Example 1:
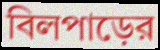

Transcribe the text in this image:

বিলপাড়ের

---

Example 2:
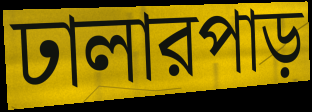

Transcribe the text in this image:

ঢালারপাড়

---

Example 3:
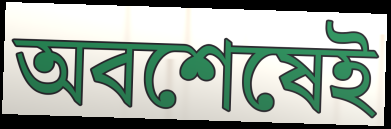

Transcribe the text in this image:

অবশেষেই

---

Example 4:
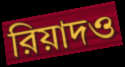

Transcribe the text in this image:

রিয়াদও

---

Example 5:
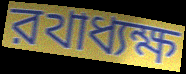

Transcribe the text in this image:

রথাধ্যক্ষ